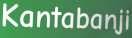
Kantabanji